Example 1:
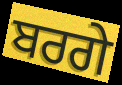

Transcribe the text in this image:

ਬਰਗੇ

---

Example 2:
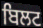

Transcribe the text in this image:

ਬਿਲਟ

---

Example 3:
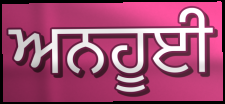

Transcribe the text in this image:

ਅਨਹੂਈ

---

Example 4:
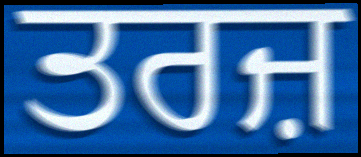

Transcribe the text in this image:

ਤਰਜ਼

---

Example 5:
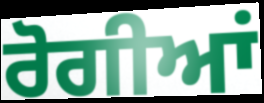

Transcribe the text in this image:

ਰੋਗੀਆਂ